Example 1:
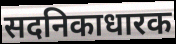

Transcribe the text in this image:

सदनिकाधारक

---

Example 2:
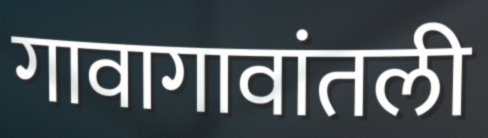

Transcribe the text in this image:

गावागावांतली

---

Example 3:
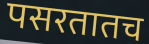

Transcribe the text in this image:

पसरतातच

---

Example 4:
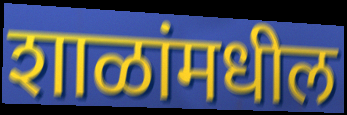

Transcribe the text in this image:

शाळांमधील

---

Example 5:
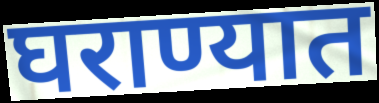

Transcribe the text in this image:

घराण्यात